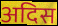
अदिस